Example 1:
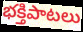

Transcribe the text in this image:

భక్తిపాటలు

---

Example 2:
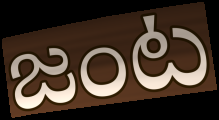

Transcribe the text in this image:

జంట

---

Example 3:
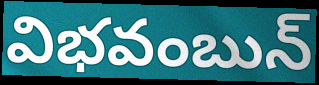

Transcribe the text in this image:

విభవంబున్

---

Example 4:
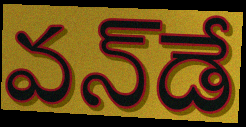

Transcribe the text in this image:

వన్‌డే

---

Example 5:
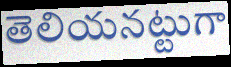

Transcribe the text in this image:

తెలియనట్టుగా